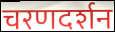
चरणदर्शन